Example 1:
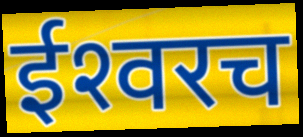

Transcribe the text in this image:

ईश्वरच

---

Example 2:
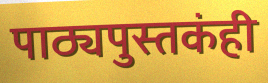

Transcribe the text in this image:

पाठ्यपुस्तकंही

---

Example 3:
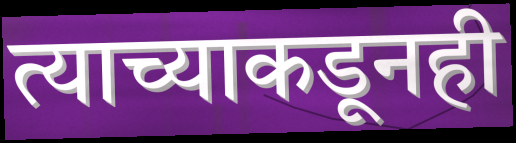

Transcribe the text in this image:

त्याच्याकडूनही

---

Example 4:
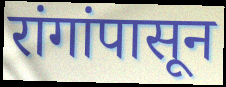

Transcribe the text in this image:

रांगांपासून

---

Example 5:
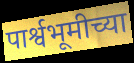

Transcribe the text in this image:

पार्श्वभूमीच्या